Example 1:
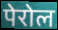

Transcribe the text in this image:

पेरोल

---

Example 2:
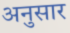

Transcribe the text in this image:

अनुसार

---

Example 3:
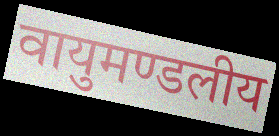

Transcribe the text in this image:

वायुमण्डलीय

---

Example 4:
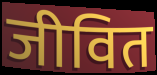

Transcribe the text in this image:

जीवित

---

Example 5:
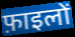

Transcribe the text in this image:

फ़ाइलों